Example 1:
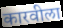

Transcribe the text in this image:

कारवीला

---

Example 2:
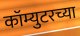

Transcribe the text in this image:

कॉम्युटरच्या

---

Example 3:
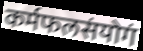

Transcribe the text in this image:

कर्मफलसंयोगं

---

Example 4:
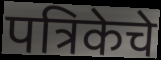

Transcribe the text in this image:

पत्रिकेचे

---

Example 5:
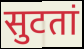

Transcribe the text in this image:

सुटतां